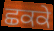
ਛਕਕੇ